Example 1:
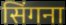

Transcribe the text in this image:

सिंगना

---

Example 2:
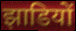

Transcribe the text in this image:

झाडियों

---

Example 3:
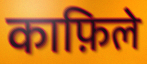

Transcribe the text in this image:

काफ़िले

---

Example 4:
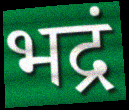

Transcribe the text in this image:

भद्रं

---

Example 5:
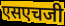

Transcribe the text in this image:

एसएचजी